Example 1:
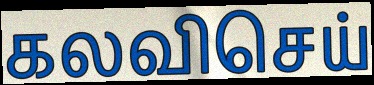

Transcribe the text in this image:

கலவிசெய்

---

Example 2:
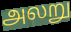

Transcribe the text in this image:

அலறு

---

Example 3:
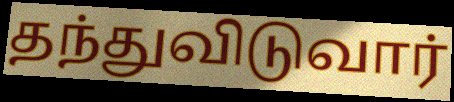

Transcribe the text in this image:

தந்துவிடுவார்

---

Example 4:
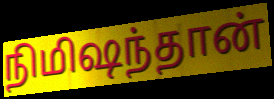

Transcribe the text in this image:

நிமிஷந்தான்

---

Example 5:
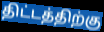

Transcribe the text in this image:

திட்டத்திற்கு